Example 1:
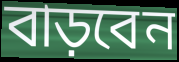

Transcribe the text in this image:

বাড়বেন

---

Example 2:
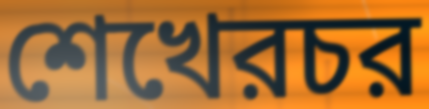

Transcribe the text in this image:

শেখেরচর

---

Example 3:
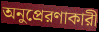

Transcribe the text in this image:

অনুপ্রেরণাকারী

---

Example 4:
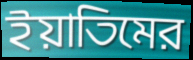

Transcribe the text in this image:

ইয়াতিমের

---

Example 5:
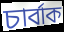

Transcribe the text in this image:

চার্বাক